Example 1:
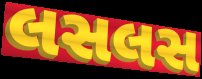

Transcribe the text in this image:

લસલસ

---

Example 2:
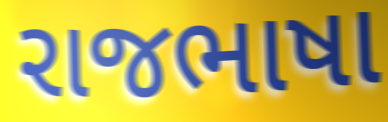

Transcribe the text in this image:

રાજભાષા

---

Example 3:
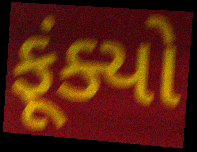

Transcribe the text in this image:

ફૂંક્યો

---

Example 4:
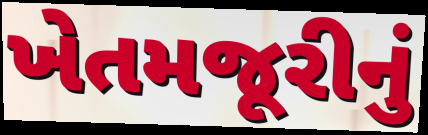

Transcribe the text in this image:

ખેતમજૂરીનું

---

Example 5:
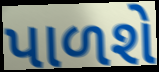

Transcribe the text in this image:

પાળશે